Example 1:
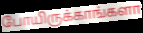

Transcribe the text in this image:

போயிருக்காங்களா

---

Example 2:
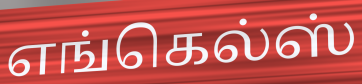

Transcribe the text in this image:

எங்கெல்ஸ்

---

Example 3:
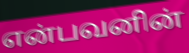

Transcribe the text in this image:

என்பவனின்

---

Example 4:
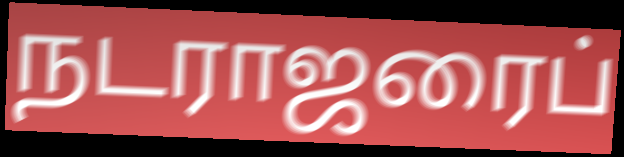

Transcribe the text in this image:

நடராஜரைப்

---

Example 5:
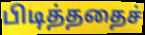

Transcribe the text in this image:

பிடித்ததைச்